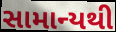
સામાન્યથી